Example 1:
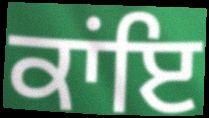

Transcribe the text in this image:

ਕਾਂਇ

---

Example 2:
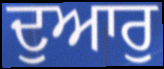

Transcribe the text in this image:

ਦੁਆਰੁ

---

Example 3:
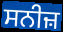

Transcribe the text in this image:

ਸਨੀਜ਼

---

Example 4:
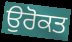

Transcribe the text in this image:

ਉਰੋਕਤ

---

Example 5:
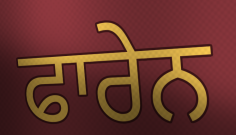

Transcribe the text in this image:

ਫਾਰੇਨ